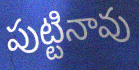
పుట్టినావు